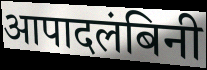
आपादलंबिनी